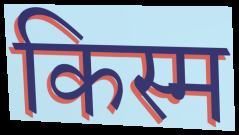
किस्म